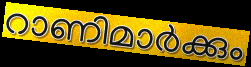
റാണിമാർക്കും